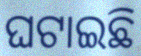
ଘଟାଇଛି